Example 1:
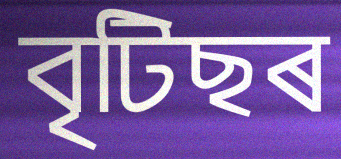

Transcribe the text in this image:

বৃটিছৰ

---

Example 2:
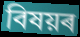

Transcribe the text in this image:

বিষয়ৰ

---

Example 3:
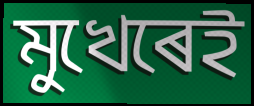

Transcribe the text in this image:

মুখেৰেই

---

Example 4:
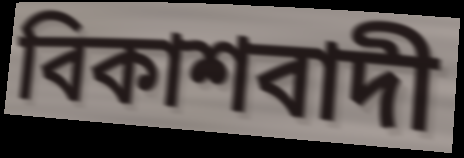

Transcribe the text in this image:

বিকাশবাদী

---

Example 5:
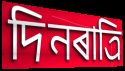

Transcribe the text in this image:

দিনৰাত্ৰি